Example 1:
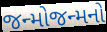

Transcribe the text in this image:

જન્મોજન્મનો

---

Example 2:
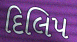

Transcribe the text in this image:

દિલિપ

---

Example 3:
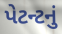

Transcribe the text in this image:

પેટન્ટનું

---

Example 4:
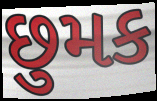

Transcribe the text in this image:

છુમક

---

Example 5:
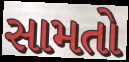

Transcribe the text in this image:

સામતો